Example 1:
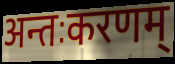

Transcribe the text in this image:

अन्तःकरणम्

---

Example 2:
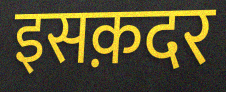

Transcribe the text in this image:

इसक़दर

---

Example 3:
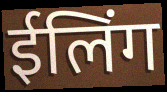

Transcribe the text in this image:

ईलिंग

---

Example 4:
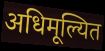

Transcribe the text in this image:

अधिमूल्यित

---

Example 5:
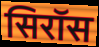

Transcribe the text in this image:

सिरॉस